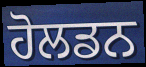
ਹੋਲਡਨ